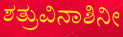
ಶತ್ರುವಿನಾಶಿನೀ